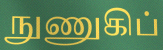
நுணுகிப்